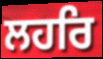
ਲਹਰਿ